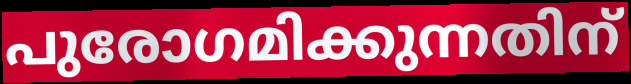
പുരോഗമിക്കുന്നതിന്